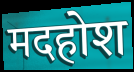
मदहोश